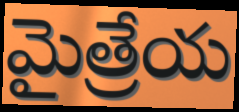
మైత్రేయ